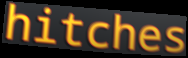
hitches